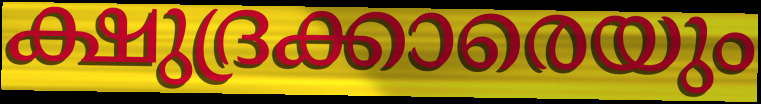
ക്ഷുദ്രക്കാരെയും